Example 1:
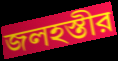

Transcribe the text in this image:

জলহস্তীর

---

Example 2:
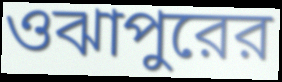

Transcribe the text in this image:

ওঝাপুরের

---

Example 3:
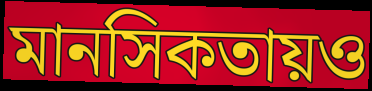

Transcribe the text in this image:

মানসিকতায়ও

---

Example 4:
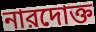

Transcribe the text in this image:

নারদোক্ত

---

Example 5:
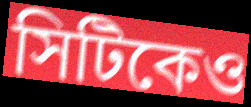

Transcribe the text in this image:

সিটিকেও